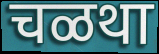
चळथा